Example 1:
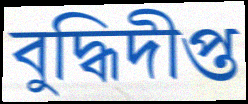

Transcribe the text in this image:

বুদ্ধিদীপ্ত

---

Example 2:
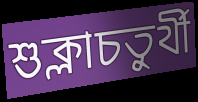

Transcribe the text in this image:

শুক্লাচতুৰ্থী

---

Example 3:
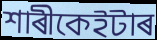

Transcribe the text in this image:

শাৰীকেইটাৰ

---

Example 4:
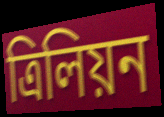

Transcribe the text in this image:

ত্ৰিলিয়ন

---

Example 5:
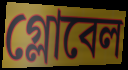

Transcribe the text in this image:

গ্লোবেল